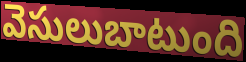
వెసులుబాటుంది